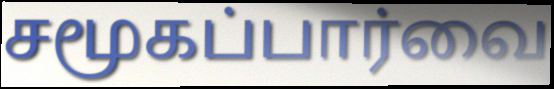
சமூகப்பார்வை